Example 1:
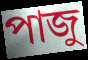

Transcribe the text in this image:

পাজু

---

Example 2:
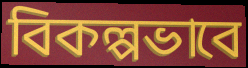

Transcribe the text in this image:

বিকল্পভাবে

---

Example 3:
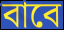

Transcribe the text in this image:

বাবে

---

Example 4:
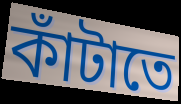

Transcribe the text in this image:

কাঁটাতে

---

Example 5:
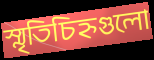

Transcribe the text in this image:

স্মৃতিচিহ্নগুলো